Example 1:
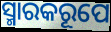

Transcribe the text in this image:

ସ୍ମାରକରୂପେ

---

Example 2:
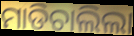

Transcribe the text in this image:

ମାଡିଚାଲିଲା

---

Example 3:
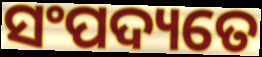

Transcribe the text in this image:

ସଂପଦ୍ୟତେ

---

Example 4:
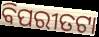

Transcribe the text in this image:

ବିପରୀତଟା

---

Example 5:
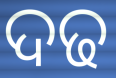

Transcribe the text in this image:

ଦଢ